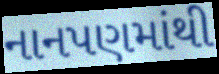
નાનપણમાંથી